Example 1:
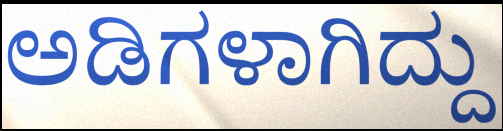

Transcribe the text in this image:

ಅಡಿಗಳಾಗಿದ್ದು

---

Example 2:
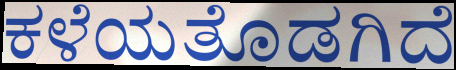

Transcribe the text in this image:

ಕಳೆಯತೊಡಗಿದೆ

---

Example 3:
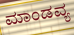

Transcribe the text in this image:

ಮಾಂಡವ್ಯ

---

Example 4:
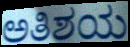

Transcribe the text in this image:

ಅತಿಶಯ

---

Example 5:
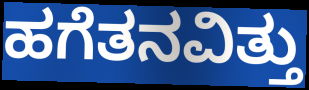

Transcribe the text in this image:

ಹಗೆತನವಿತ್ತು